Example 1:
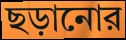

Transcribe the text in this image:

ছড়ানোর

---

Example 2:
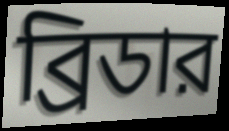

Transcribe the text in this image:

ব্রিডার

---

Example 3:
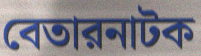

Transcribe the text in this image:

বেতারনাটক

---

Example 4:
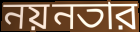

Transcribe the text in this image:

নয়নতার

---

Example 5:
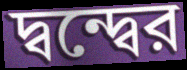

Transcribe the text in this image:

দ্বন্দ্বের